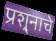
प्रश्र्नाचे